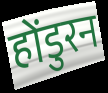
होंडुरन